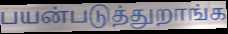
பயன்படுத்துறாங்க